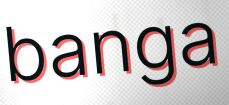
banga